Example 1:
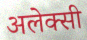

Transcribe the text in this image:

अलेक्सी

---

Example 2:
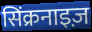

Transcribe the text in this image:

सिंक्रनाइज़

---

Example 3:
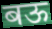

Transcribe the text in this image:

बऊ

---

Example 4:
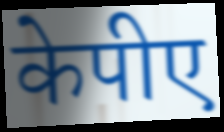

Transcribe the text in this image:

केपीए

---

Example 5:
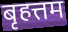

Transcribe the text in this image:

बृहत्तम